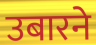
उबारने